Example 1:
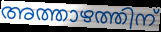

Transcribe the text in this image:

അത്താഴത്തിന്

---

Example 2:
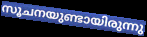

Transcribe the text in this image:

സൂചനയുണ്ടായിരുന്നു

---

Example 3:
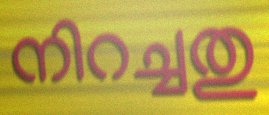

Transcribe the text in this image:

നിറച്ചതു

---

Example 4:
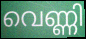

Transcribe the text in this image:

വെണ്ണി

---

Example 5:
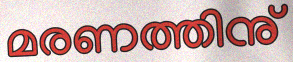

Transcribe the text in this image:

മരണത്തിനു്